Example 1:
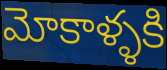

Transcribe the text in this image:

మోకాళ్ళకి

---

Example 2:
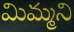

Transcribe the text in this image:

మిమ్మని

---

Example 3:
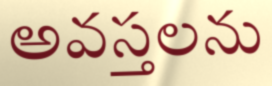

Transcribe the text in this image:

అవస్తలను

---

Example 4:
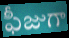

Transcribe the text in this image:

ఫీజుగా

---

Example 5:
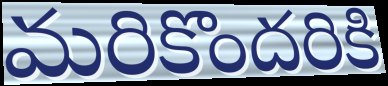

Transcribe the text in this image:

మరికొందరికి